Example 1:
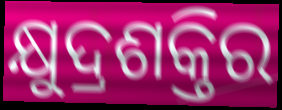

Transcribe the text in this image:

କ୍ଷୁଦ୍ରଶକ୍ତିର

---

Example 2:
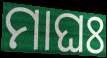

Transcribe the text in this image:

ମାଘଃ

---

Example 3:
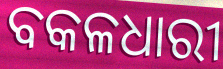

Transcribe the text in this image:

ବକଳଧାରୀ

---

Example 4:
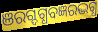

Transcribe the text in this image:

ଞରଗ୍ଦଗ୍ଧବଜ୍ଞରଦ୍ଭଗ୍ଧ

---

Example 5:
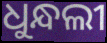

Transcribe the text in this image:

ଧୁନ୍ଧଲୀ